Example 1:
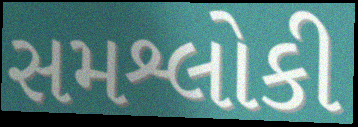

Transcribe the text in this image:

સમશ્લોકી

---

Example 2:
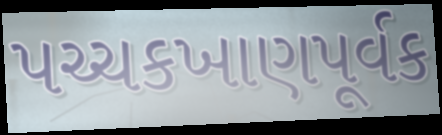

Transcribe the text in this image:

પચ્ચકખાણપૂર્વક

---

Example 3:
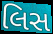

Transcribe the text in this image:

લિસ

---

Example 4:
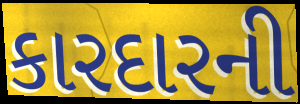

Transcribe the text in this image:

કારદારની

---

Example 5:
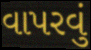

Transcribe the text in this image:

વાપરવું